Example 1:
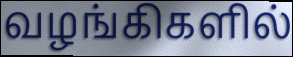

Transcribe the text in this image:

வழங்கிகளில்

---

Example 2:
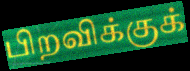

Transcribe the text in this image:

பிறவிக்குக்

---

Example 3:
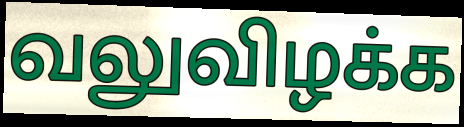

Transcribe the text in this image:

வலுவிழக்க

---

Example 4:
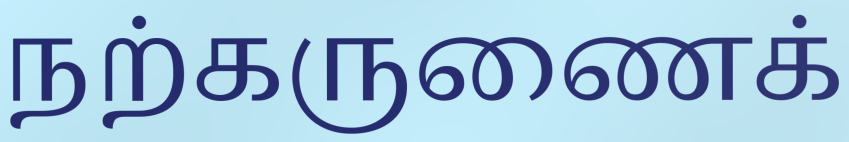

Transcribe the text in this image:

நற்கருணைக்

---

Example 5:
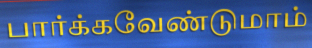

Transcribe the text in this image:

பார்க்கவேண்டுமாம்